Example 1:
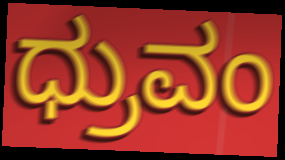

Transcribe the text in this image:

ಧ್ರುವಂ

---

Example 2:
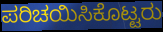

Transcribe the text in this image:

ಪರಿಚಯಿಸಿಕೊಟ್ಟರು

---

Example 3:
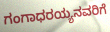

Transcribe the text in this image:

ಗಂಗಾಧರಯ್ಯನವರಿಗೆ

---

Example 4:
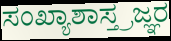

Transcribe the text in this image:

ಸಂಖ್ಯಾಶಾಸ್ತ್ರಜ್ಞರ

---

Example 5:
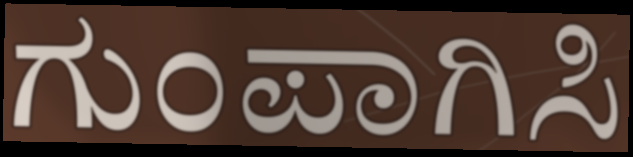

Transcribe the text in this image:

ಗುಂಪಾಗಿಸಿ